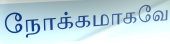
நோக்கமாகவே